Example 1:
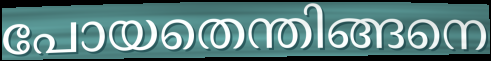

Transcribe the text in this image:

പോയതെന്തിങ്ങനെ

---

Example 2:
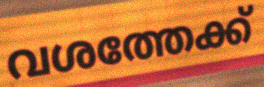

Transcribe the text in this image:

വശത്തേക്ക്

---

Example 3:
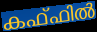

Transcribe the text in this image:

കഫ്ഫിൽ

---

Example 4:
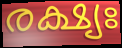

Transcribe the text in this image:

രക്ഷ്യഃ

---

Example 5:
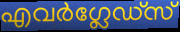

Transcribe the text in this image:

എവർഗ്ലേഡ്സ്